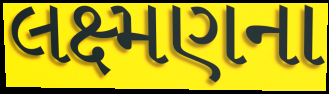
લક્ષ્મણના